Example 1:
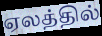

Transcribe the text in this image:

ஏலத்தில்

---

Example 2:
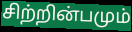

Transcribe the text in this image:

சிற்றின்பமும்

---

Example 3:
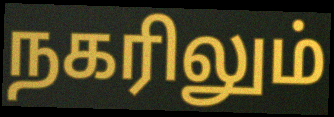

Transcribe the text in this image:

நகரிலும்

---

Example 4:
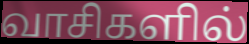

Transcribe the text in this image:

வாசிகளில்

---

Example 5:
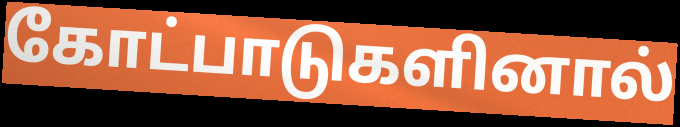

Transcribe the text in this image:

கோட்பாடுகளினால்